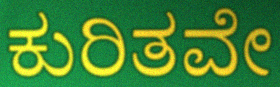
ಕುರಿತವೇ